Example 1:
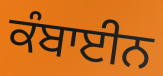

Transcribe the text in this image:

ਕੰਬਾਈਨ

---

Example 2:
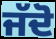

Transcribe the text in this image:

ਜੱਦੋ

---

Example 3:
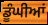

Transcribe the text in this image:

ਡੂੰਘੀਆਂ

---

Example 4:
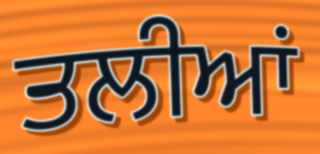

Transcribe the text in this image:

ਤਲੀਆਂ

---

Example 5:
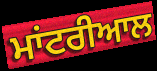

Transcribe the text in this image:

ਮਾਂਟਰੀਆਲ